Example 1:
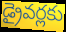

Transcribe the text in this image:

డ్రైవర్లకు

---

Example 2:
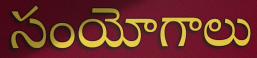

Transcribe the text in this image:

సంయోగాలు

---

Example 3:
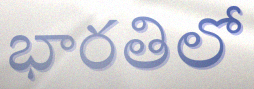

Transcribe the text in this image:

భారతిలో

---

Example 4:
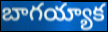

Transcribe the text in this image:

బాగయ్యాక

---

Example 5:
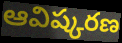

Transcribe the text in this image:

ఆవిష్కరణ